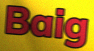
Baig